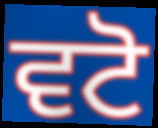
ਵਟੋ